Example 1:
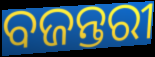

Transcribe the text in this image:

ବଜନ୍ତରୀ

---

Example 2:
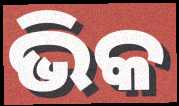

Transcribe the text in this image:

ଭିକ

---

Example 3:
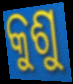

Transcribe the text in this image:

କୁଶୁ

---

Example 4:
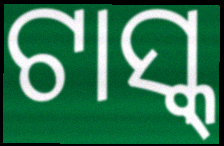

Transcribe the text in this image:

ଟାସ୍କ୍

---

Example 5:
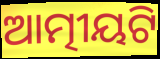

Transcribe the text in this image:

ଆତ୍ମୀୟଟି